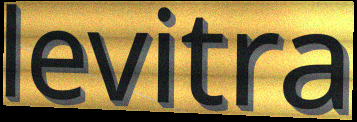
levitra